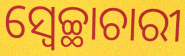
ସ୍ଵେଚ୍ଛାଚାରୀ